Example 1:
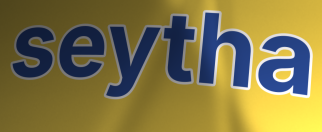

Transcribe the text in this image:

seytha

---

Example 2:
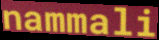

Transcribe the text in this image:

nammali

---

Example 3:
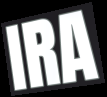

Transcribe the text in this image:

IRA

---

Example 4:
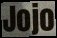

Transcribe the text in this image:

Jojo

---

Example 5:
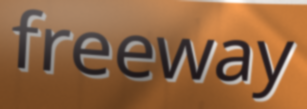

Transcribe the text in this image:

freeway